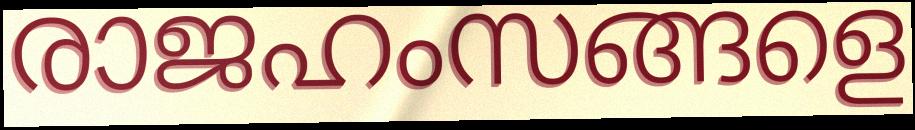
രാജഹംസങ്ങളെ